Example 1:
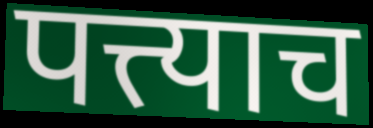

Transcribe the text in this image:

पत्त्याच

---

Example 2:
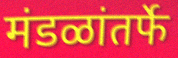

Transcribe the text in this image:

मंडळांतर्फे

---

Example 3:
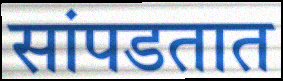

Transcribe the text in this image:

सांपडतात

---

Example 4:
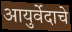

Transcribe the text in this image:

आयुर्वेदाचे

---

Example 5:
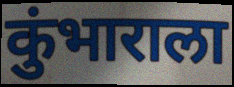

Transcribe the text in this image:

कुंभाराला